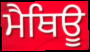
ਮੈਥਿਊ